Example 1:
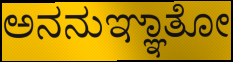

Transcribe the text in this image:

ಅನನುಞ್ಞಾತೋ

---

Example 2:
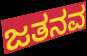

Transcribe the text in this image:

ಜತನವ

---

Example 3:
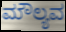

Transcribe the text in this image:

ಮೌಲ್ಯವ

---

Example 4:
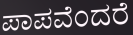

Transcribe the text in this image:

ಪಾಪವೆಂದರೆ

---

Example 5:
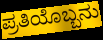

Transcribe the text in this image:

ಪ್ರತಿಯೊಬ್ಬನು